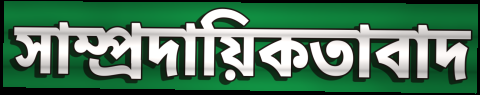
সাম্প্ৰদায়িকতাবাদ